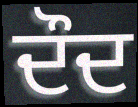
ਦੌਦ